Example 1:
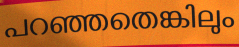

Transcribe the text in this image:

പറഞ്ഞതെങ്കിലും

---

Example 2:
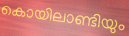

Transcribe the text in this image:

കൊയിലാണ്ടിയും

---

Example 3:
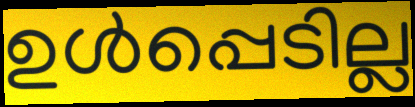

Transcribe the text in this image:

ഉൾപ്പെടില്ല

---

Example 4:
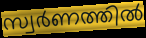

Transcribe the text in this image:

സ്വർണത്തിൽ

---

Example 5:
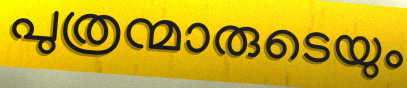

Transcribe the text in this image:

പുത്രന്മാരുടെയും